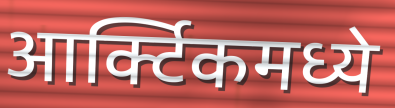
आर्क्टिकमध्ये